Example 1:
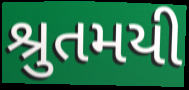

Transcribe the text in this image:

શ્રુતમયી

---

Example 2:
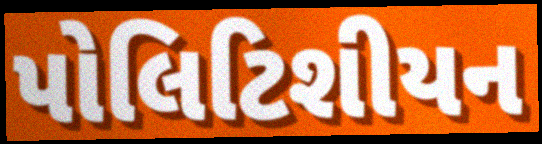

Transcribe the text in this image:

પોલિટિશીયન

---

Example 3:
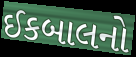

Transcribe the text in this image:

ઈકબાલનો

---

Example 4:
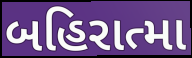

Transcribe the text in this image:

બહિરાત્મા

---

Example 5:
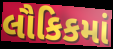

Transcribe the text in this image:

લૌકિકમાં